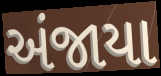
અંજાયા